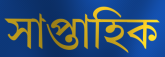
সাপ্তাহিক